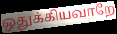
ஒதுக்கியவாறே